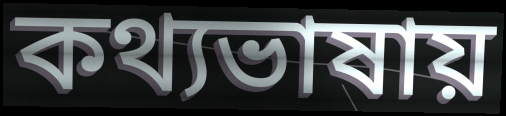
কথ্যভাষায়